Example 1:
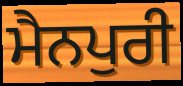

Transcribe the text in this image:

ਮੈਨਪੁਰੀ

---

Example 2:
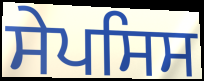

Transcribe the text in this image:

ਸੇਪਸਿਸ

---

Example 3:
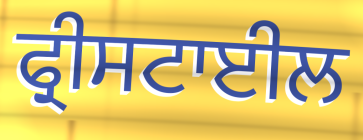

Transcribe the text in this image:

ਫ੍ਰੀਸਟਾਈਲ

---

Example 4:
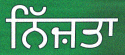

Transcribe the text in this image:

ਨਿੱਜ਼ਤਾ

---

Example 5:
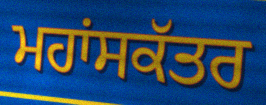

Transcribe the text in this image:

ਮਹਾਂਸਕੱਤਰ